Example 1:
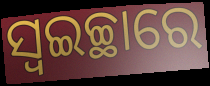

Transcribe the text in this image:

ସ୍ଵଇଚ୍ଛାରେ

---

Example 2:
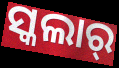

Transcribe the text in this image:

ସ୍କଲାର୍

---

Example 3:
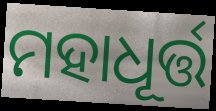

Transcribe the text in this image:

ମହାଧୂର୍ତ୍ତ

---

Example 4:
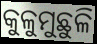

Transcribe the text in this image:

କୁଳୁମୁଛୁଳି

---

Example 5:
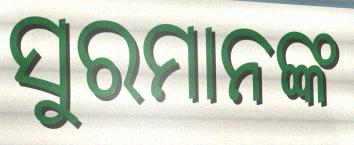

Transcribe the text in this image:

ସୁରମାନଙ୍କ